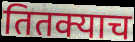
तितक्याच